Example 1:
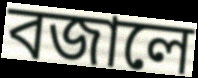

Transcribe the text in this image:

বজালে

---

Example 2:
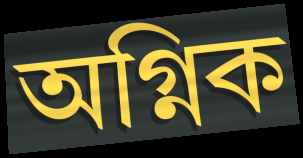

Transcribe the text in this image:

অগ্নিক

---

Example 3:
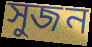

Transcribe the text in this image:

সুজন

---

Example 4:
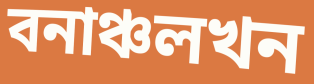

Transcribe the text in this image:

বনাঞ্চলখন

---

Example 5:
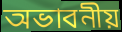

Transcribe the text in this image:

অভাবনীয়